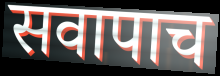
सवापाच